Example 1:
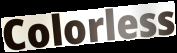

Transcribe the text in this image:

Colorless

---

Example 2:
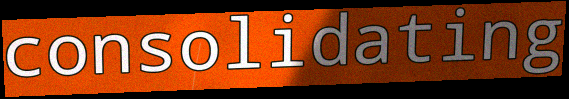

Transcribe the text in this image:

consolidating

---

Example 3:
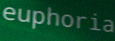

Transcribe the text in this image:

euphoria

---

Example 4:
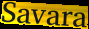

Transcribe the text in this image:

Savara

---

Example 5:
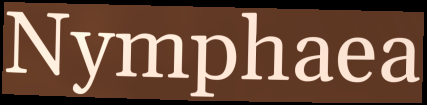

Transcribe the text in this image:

Nymphaea